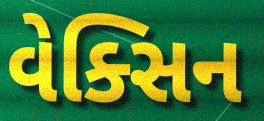
વેક્સિન